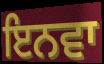
ਇਨਵਾ